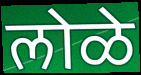
लोळे